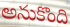
అనుకొంది